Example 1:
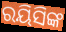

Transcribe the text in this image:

ରୟିସିଙ୍କ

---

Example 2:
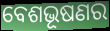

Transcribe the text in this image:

ବେଶଭୂଷଣର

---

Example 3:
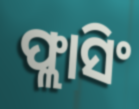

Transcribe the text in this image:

ଫ୍ଲାସିଂ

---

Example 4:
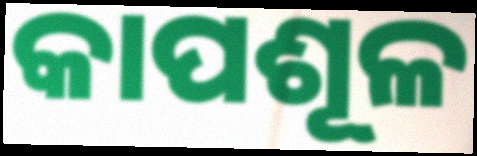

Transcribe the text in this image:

କାପଶୂଳ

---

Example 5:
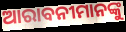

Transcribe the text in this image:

ଆରାବନୀମାନଙ୍କୁ